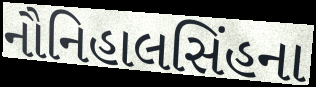
નૌનિહાલસિંહના